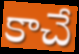
కాచే